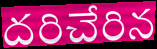
దరిచేరిన